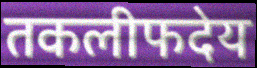
तकलीफदेय